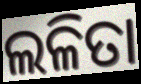
ଲଳିତା